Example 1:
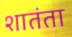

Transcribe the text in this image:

शातंता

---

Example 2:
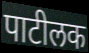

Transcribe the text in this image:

पाटीलक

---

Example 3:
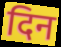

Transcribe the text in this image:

दिन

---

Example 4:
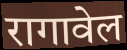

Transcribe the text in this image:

रागावेल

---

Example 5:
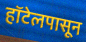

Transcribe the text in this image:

हॉटेलपासून